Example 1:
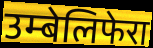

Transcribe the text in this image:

उम्बेलिफेरा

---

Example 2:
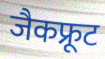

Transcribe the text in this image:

जैकफ्रूट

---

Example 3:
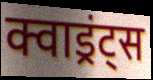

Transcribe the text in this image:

क्वाड्रंट्स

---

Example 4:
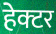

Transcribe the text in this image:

हेक्‍टर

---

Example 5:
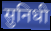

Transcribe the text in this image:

सुनिधी